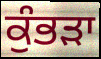
ਕੁੰਭੜਾ